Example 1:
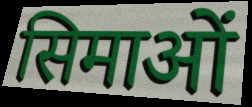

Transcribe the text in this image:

सिमाओं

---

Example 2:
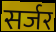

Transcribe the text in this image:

सर्जर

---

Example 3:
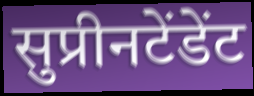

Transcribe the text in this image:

सुप्रीनटेंडेंट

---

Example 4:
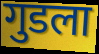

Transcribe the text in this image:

गुडला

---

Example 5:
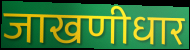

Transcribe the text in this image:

जाखणीधार